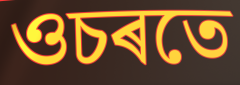
ওচৰতে